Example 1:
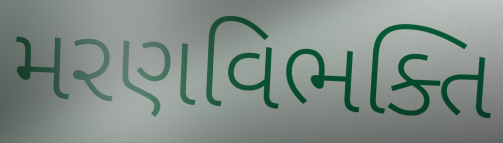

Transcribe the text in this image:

મરણવિભક્તિ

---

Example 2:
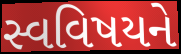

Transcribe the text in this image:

સ્વવિષયને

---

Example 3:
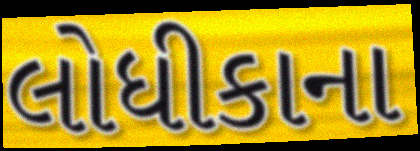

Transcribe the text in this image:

લોધીકાના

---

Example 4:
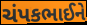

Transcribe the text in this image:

ચંપકભાઈને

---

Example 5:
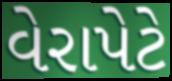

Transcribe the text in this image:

વેરાપેટે